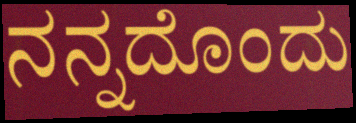
ನನ್ನದೊಂದು